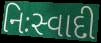
નિઃસ્વાદી